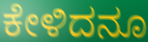
ಕೇಳಿದನೂ